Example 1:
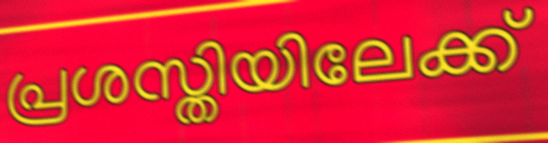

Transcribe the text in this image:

പ്രശസ്തിയിലേക്ക്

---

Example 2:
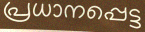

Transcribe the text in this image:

പ്രധാനപ്പെട്ട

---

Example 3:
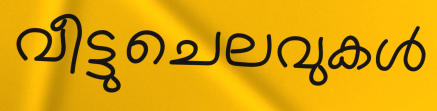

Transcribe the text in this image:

വീട്ടുചെലവുകൾ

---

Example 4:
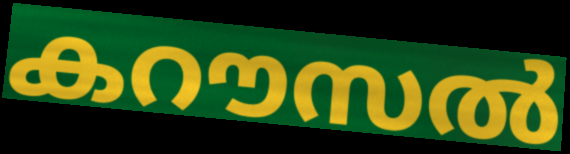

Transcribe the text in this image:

കറൗസൽ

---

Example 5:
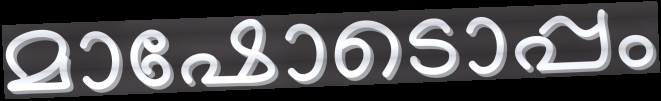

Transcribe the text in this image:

മാഷോടൊപ്പം